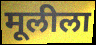
मूलीला